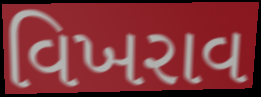
વિખરાવ